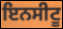
ਇਨਸੀਟੂ